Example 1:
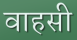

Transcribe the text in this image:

वाहसी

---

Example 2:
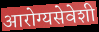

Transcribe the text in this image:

आरोग्यसेवेशी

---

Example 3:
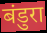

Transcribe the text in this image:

बंडुरा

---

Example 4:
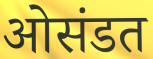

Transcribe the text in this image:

ओसंडत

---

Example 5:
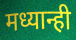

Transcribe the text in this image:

मध्यान्ही